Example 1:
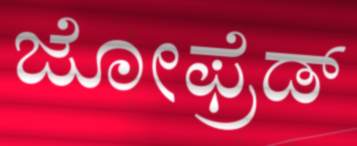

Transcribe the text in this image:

ಜೋಫ್ರೆಡ್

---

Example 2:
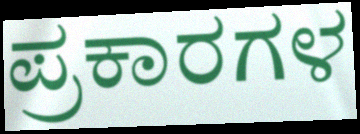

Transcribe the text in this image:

ಪ್ರಕಾರಗಳ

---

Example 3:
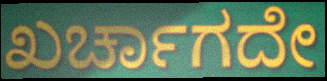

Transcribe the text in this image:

ಖರ್ಚಾಗದೇ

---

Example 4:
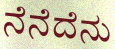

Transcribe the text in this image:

ನೆನೆದೆನು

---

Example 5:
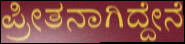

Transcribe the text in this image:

ಪ್ರೀತನಾಗಿದ್ದೇನೆ